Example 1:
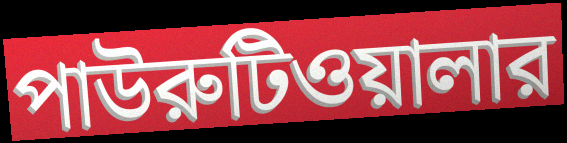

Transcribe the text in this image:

পাউরুটিওয়ালার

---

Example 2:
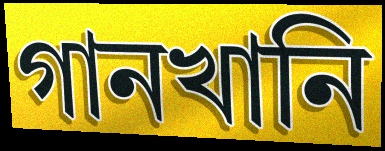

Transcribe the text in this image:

গানখানি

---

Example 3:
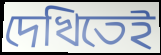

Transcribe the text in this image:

দেখিতেই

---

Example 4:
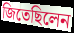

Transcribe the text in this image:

জিতেছিলেন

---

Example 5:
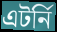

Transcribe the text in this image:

এটর্নি